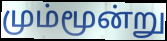
மும்மூன்று